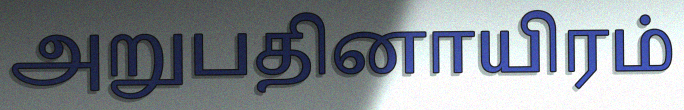
அறுபதினாயிரம்